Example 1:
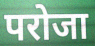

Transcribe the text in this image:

परोजा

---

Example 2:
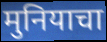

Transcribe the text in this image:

मुनियाचा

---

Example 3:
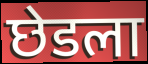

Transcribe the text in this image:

छेडला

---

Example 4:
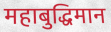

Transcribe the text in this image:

महाबुद्धिमान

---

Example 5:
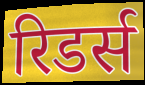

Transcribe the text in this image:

रिडर्स